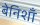
बेनिशाँ